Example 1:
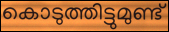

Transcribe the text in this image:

കൊടുത്തിട്ടുമുണ്ട്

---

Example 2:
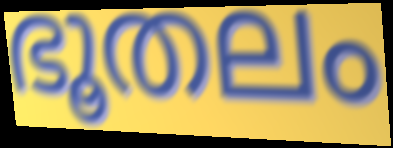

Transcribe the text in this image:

ഭൂതലം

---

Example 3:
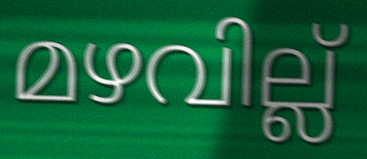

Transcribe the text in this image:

മഴവില്ല്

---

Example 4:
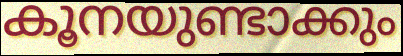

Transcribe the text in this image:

കൂനയുണ്ടാക്കും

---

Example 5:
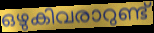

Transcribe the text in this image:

ഒഴുകിവരാറുണ്ട്